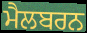
ਮੈਲਬਰਨ